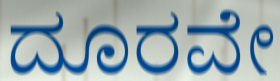
ದೂರವೇ